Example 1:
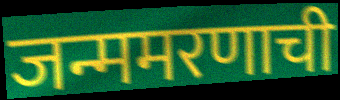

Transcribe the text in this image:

जन्ममरणाची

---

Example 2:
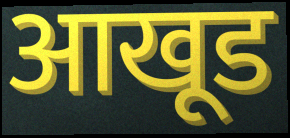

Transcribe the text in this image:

आखूड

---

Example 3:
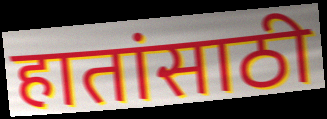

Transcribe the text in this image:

हातांसाठी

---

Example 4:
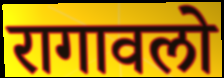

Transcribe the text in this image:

रागावलो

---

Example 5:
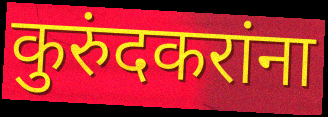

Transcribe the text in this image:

कुरुंदकरांना